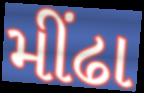
મીંઢા